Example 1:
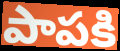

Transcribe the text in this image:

పాపకి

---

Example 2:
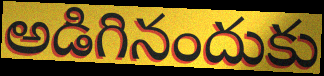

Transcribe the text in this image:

అడిగినందుకు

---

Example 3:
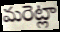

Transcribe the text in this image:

మరెట్లా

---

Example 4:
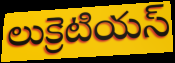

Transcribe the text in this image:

లుక్రెటియస్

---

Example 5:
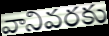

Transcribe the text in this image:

వానివరకు